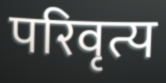
परिवृत्य